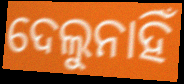
ଦେଲୁନାହିଁ